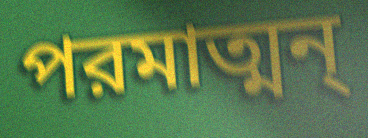
পরমাত্মন্